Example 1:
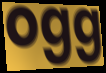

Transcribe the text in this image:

ogg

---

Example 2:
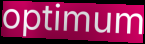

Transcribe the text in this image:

optimum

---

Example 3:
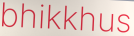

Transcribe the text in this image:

bhikkhus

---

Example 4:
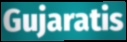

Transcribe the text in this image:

Gujaratis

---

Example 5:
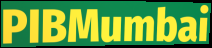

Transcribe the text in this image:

PIBMumbai